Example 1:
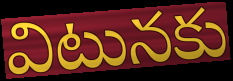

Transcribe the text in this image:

విటునకు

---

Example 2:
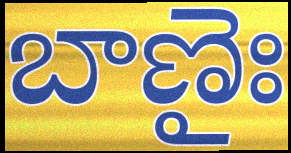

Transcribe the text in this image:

బాణైః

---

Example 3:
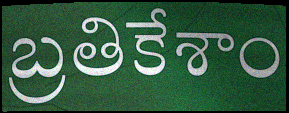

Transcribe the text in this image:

బ్రతికేశాం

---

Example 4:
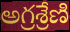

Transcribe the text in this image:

అగ్రశ్రేణి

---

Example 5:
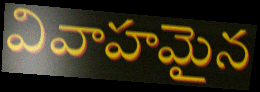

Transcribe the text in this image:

వివాహమైన